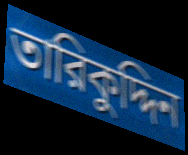
তারিকুদ্দিন